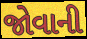
જોવાની